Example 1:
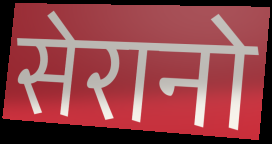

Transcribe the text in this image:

सेरानो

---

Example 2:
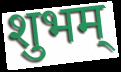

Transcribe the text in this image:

शुभम्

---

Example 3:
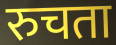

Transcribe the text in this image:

रुचता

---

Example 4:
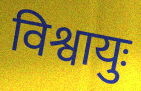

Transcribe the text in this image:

विश्वायुः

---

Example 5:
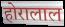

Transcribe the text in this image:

होरालाल